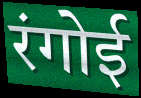
रंगोई